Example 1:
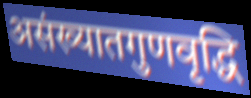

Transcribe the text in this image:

असंख्यातगुणवृद्धि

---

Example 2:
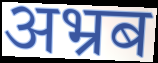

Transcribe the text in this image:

अभ्रब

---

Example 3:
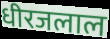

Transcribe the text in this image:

धीरजलाल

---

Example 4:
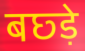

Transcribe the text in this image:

बछ्ड़े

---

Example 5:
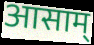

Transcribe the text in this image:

आसाम्